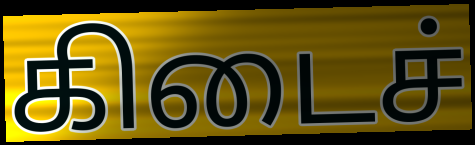
கிடைச்